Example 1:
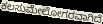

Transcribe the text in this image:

ಕಲಸುಮೇಲೋಗರವಾಗಿದೆ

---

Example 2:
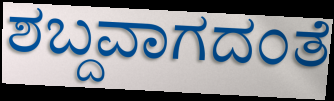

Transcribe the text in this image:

ಶಬ್ದವಾಗದಂತೆ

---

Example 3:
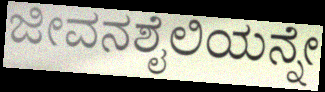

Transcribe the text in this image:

ಜೀವನಶೈಲಿಯನ್ನೇ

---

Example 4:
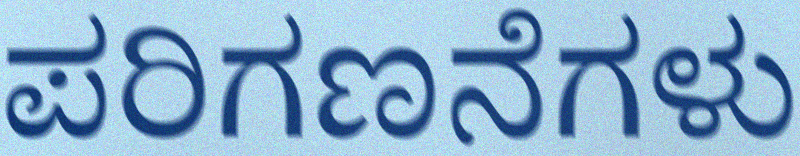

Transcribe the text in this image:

ಪರಿಗಣನೆಗಳು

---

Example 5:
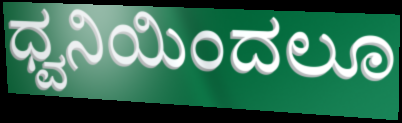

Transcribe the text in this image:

ಧ್ವನಿಯಿಂದಲೂ